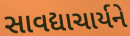
સાવદ્યાચાર્યને